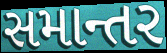
સમાન્તર